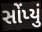
સોંપ્યું